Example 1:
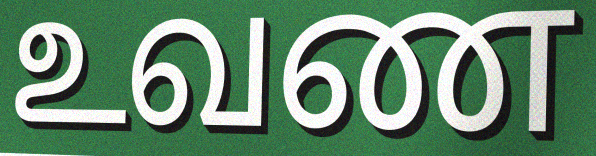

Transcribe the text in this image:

உவண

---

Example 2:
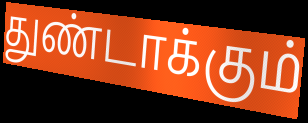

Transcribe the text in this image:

துண்டாக்கும்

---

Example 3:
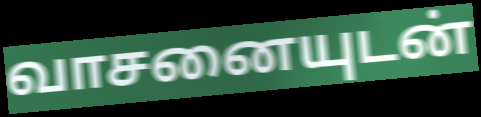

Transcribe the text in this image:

வாசனையுடன்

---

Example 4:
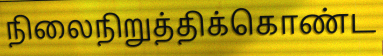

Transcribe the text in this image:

நிலைநிறுத்திக்கொண்ட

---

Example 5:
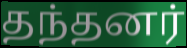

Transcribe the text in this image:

தந்தனர்